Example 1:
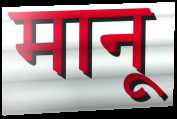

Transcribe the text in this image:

मानू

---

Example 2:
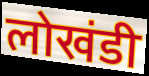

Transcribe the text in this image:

लोखंडी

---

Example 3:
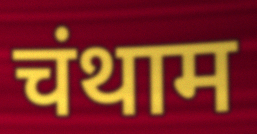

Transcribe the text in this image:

चंथाम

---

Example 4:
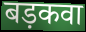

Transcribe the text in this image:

बड़कवा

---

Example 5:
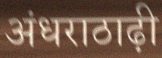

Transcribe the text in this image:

अंधराठाढ़ी